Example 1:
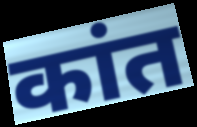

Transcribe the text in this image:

कांत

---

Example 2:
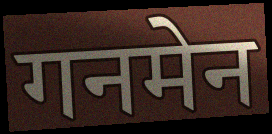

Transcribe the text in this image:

गनमेन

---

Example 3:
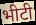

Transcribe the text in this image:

भीटी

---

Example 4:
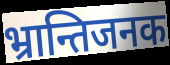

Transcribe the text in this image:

भ्रान्तिजनक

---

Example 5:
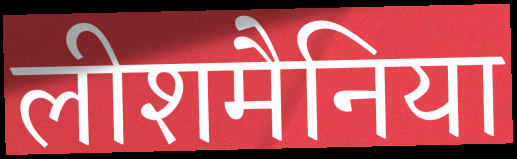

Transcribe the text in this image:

लीशमैनिया